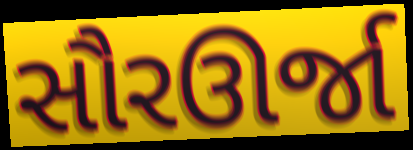
સૌરઊર્જા